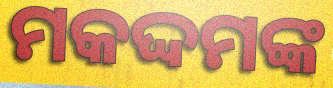
ମକଦ୍ଦମଙ୍କ